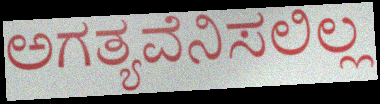
ಅಗತ್ಯವೆನಿಸಲಿಲ್ಲ